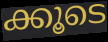
ക്കൂടെ